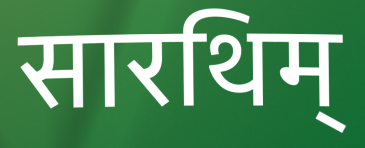
सारथिम्